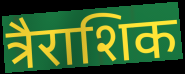
त्रैराशिक